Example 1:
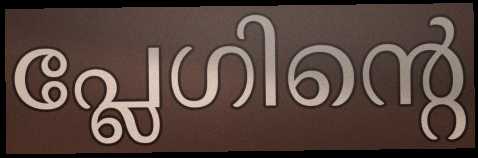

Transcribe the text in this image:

പ്ലേഗിന്റെ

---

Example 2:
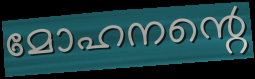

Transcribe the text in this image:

മോഹനന്റെ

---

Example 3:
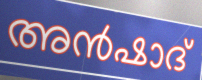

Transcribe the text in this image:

അൻഷാദ്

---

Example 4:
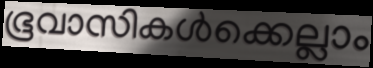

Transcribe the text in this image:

ഭൂവാസികൾക്കെല്ലാം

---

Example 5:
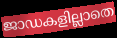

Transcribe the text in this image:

ജാഡകളില്ലാതെ